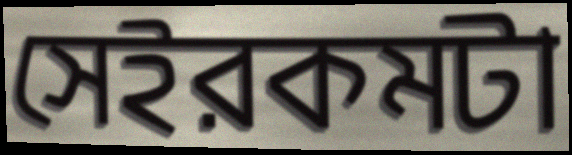
সেইরকমটা